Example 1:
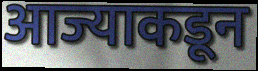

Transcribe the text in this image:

आज्याकडून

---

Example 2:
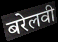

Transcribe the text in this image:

बरेलवी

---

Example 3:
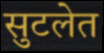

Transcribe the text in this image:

सुटलेत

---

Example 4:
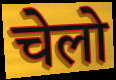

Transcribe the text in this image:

चेलो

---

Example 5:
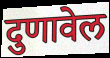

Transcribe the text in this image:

दुणावेल